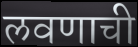
लवणाची